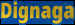
Dignaga